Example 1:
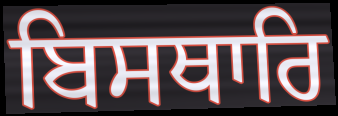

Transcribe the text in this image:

ਬਿਸਥਾਰਿ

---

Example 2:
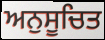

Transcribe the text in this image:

ਅਨੁਸੂਚਿਤ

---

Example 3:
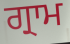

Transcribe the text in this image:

ਗ੍ਰਾਮ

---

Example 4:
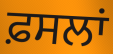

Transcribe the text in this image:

ਫ਼ਸਲਾਂ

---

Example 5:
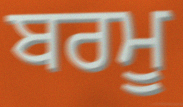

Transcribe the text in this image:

ਬਰਮੂ